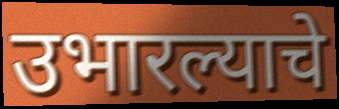
उभारल्याचे